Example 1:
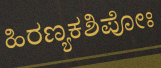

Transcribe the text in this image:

ಹಿರಣ್ಯಕಶಿಪೋಃ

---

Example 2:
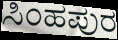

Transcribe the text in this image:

ಸಿಂಹಪುರ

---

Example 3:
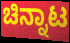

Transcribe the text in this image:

ಚಿನ್ನಾಟ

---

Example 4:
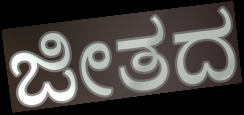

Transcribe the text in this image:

ಜೀತದ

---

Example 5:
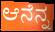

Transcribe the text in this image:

ಆನೆನ್ನ